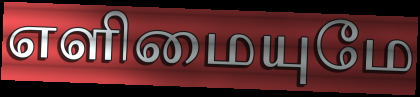
எளிமையுமே